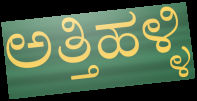
ಅತ್ತಿಹಳ್ಳಿ